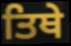
ਤਿਥੇ